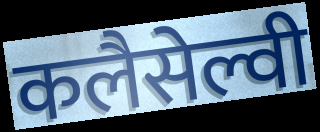
कलैसेल्वी